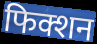
फिक्‍शन